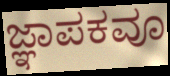
ಜ್ಞಾಪಕವೂ